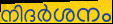
നിദർശനം